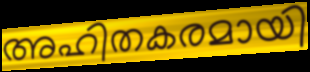
അഹിതകരമായി